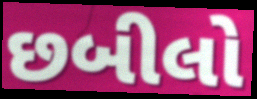
છબીલો